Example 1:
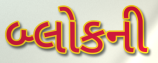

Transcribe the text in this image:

બ્લોકની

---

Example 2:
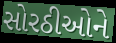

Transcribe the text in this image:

સોરઠીઓને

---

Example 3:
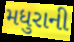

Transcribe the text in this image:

મધુરાની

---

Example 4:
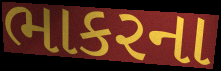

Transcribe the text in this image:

ભાકરના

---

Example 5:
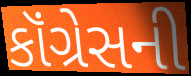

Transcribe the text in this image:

કૉંગ્રેસની